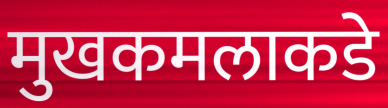
मुखकमलाकडे